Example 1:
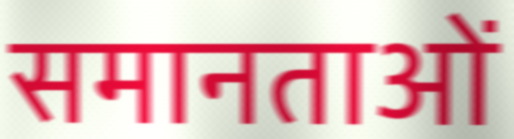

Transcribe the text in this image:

समानताओं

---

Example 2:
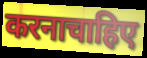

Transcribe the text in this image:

करनाचाहिए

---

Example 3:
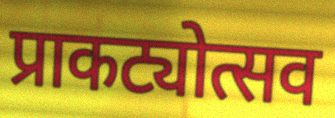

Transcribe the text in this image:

प्राकट्योत्सव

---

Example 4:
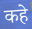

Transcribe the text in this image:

कहे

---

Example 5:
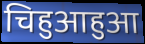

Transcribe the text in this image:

चिहुआहुआ